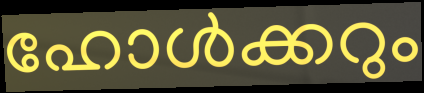
ഹോൾക്കറും